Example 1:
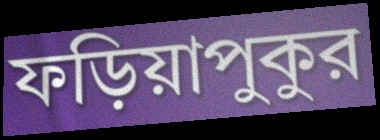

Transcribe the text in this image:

ফড়িয়াপুকুর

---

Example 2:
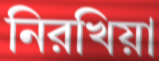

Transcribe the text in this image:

নিরখিয়া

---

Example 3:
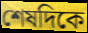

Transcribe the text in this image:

শেষদিকে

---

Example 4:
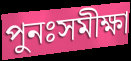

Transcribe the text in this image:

পুনঃসমীক্ষা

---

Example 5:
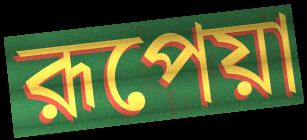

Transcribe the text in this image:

রূপেয়া